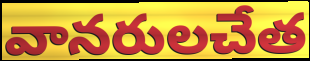
వానరులచేత